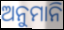
ଅନୁମାନି